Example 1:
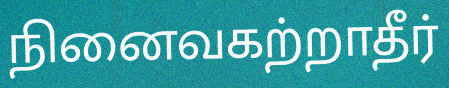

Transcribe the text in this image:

நினைவகற்றாதீர்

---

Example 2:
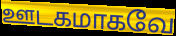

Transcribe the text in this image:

ஊடகமாகவே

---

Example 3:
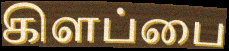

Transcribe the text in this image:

கிளப்பை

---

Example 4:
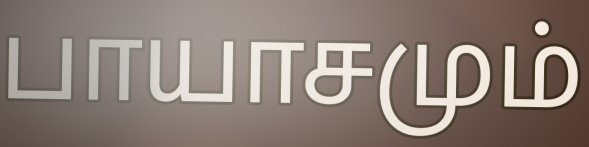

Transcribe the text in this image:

பாயாசமும்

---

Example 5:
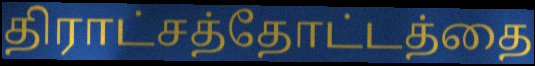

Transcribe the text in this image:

திராட்சத்தோட்டத்தை